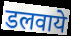
डलवाये